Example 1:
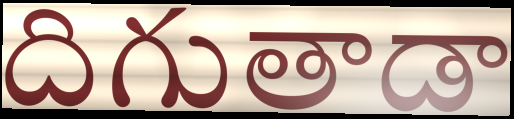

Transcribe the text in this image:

దిగుతాడా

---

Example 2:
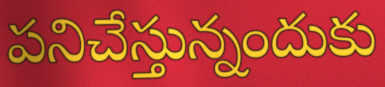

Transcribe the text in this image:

పనిచేస్తున్నందుకు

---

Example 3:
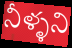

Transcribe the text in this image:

నీళ్ళని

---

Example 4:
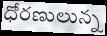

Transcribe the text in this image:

ధోరణులున్న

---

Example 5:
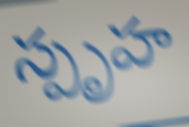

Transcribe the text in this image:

స్పృహ